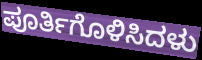
ಪೂರ್ತಿಗೊಳಿಸಿದಳು